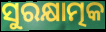
ସୁରକ୍ଷାତ୍ମକ